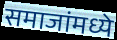
समाजांमध्ये